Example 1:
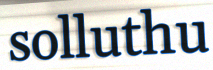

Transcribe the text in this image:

solluthu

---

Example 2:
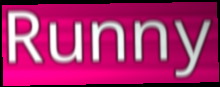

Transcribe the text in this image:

Runny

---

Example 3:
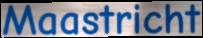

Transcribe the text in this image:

Maastricht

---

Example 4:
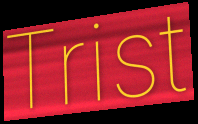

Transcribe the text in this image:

Trist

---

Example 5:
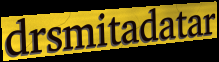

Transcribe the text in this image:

drsmitadatar